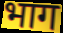
भाग